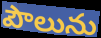
పౌలును